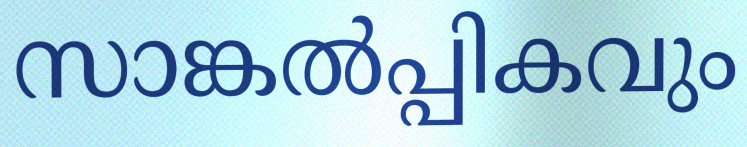
സാങ്കൽപ്പികവും